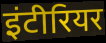
इंटीरियर